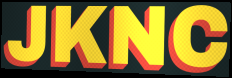
JKNC